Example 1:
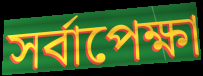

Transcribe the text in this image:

সৰ্বাপেক্ষা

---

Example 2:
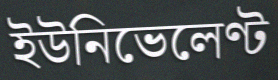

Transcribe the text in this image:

ইউনিভেলেণ্ট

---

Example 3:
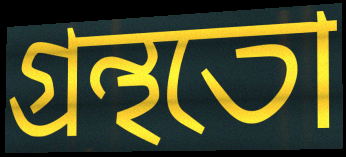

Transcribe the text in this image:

গ্ৰন্থতো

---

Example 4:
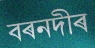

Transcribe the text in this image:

বৰনদীৰ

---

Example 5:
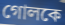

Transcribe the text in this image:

গোলকে